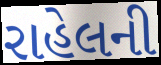
રાહેલની